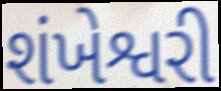
શંખેશ્વરી